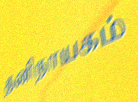
தனிநாயகம்